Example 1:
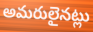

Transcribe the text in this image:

అమరులైనట్లు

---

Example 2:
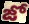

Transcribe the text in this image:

జో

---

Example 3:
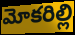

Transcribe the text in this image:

మోకరిల్లి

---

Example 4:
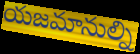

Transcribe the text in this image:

యజమానుల్ని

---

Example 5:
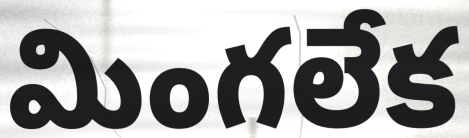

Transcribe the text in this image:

మింగలేక